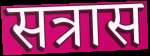
सत्रास